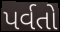
પર્વતો